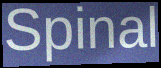
Spinal